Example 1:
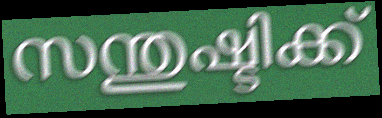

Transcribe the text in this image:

സന്തുഷ്ടിക്ക്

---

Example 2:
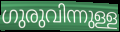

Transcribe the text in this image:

ഗുരുവിന്നുള്ള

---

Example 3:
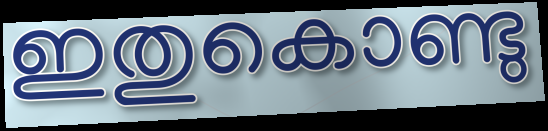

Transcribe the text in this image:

ഇതുകൊണ്ടു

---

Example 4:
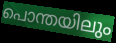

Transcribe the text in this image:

പൊന്തയിലും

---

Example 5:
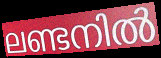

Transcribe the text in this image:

ലണ്ടനിൽ